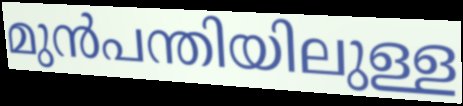
മുൻപന്തിയിലുള്ള